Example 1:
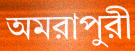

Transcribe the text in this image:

অমরাপুরী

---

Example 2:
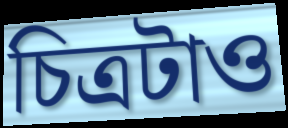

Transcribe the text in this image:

চিত্রটাও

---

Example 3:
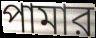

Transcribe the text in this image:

পামার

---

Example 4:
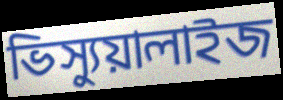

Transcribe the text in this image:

ভিস্যুয়ালাইজ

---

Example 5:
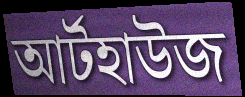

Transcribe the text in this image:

আর্টহাউজ